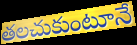
తలచుకుంటూనే